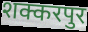
शक्करपुर